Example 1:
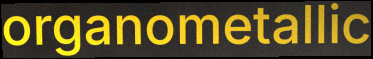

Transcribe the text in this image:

organometallic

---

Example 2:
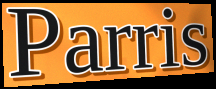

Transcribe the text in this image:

Parris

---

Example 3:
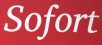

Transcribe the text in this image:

Sofort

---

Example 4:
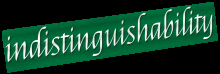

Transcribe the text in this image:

indistinguishability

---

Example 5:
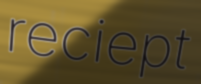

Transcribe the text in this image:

reciept